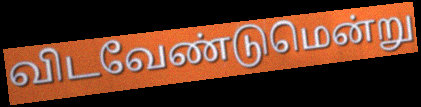
விடவேண்டுமென்று